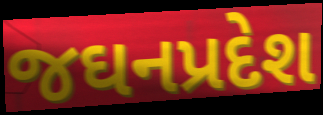
જઘનપ્રદેશ